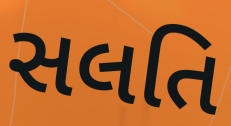
સલતિ